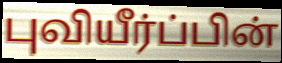
புவியீர்ப்பின்